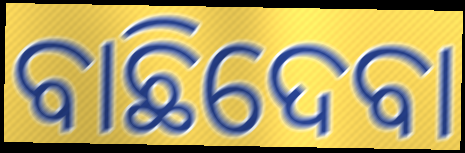
ବାଛିଦେବା